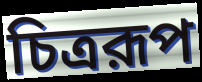
চিত্ররূপ